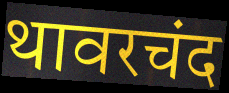
थावरचंद